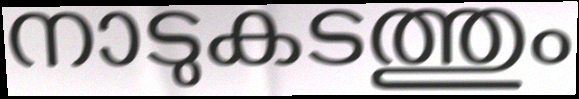
നാടുകടത്തും